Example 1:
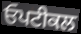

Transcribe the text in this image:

ਓਪਟੀਕਲ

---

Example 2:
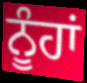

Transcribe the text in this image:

ਨੂੰਹਾਂ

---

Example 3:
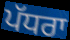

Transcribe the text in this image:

ਪੱਧਰਾ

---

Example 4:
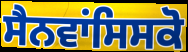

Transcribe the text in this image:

ਸੈਨਵਾਂਸਿਸਕੋ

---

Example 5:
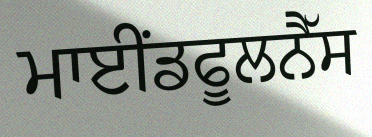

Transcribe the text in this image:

ਮਾਈਂਡਫੂਲਨੈੱਸ